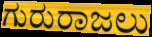
ಗುರುರಾಜಲು